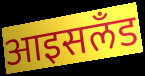
आइसलँड